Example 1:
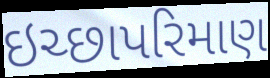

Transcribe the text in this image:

ઇચ્છાપરિમાણ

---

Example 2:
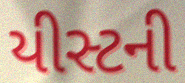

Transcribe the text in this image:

યીસ્ટની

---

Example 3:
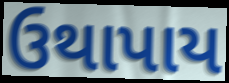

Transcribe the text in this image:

ઉથાપાય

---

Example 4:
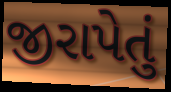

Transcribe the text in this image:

જીરાપેતું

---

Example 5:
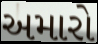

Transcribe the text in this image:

અમારો